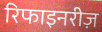
रिफाइनरीज़